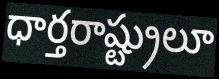
ధార్తరాష్ట్రులూ